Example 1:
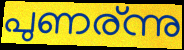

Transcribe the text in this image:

പുണര്ന്നു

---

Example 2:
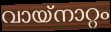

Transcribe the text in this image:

വായ്നാറ്റം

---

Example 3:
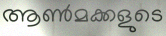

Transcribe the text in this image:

ആൺമക്കളുടെ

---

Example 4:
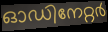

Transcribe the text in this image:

ഓഡിനേറ്റർ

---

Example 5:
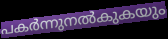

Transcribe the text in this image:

പകർന്നുനൽകുകയും